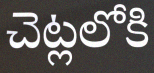
చెట్లలోకి